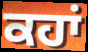
ਕਹਾਂ